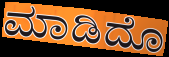
ಮಾಡಿದೊ